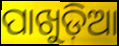
ପାଖୁଡ଼ିଆ